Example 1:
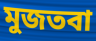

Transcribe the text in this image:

মুজতবা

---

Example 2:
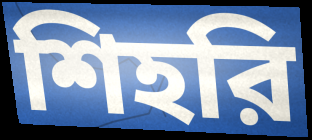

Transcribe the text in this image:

শিহরি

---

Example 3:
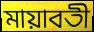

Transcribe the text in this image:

মায়াবতী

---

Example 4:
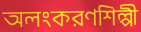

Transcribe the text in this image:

অলংকরণশিল্পী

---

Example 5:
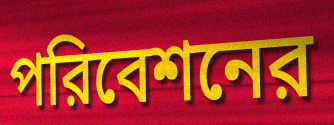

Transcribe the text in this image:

পরিবেশনের